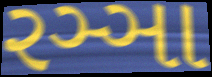
રઞ્ઞા